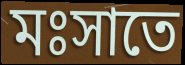
মঃসাতে